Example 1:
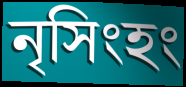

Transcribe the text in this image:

নৃসিংহং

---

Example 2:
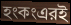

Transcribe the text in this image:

হংকংএরই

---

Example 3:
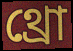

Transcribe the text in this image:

থ্রো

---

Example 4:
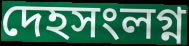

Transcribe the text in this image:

দেহসংলগ্ন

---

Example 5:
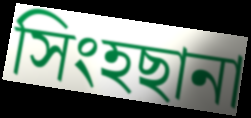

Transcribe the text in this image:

সিংহছানা